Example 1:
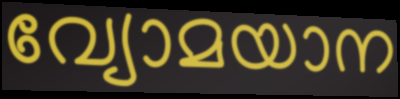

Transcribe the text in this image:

വ്യോമയാന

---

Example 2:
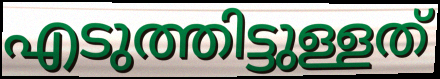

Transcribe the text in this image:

എടുത്തിട്ടുള്ളത്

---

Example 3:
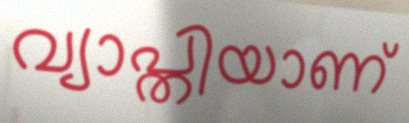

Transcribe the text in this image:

വ്യാപ്തിയാണ്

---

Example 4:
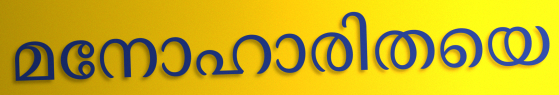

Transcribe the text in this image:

മനോഹാരിതയെ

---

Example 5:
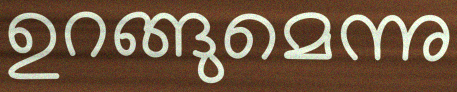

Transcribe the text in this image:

ഉറങ്ങുമെന്നു